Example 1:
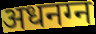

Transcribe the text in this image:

अधनग्न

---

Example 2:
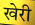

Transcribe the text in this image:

खेरी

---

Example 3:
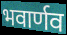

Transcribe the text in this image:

भवार्णव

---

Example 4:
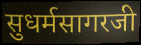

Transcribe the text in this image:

सुधर्मसागरजी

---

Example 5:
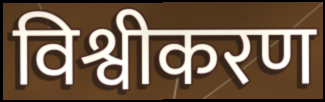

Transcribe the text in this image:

विश्वीकरण